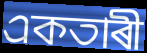
একতাৰী